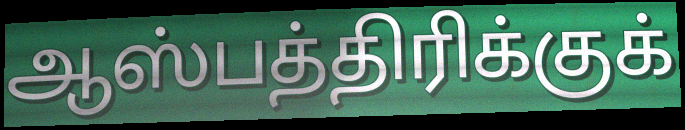
ஆஸ்பத்திரிக்குக்